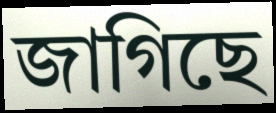
জাগিছে